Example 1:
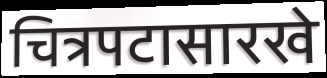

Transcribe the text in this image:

चित्रपटासारखे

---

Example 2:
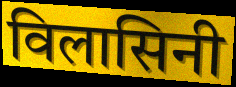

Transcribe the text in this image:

विलासिनी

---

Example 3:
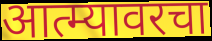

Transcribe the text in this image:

आत्म्यावरचा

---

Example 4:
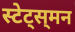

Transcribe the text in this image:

स्टेट्स्‌मन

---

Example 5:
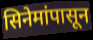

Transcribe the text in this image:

सिनेमांपासून